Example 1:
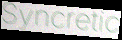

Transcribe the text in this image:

Syncretic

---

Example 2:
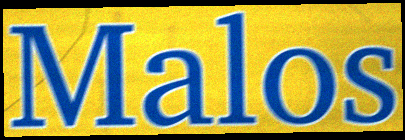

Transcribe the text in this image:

Malos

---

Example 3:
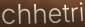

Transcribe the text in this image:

chhetri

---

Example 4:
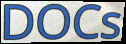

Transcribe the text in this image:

DOCs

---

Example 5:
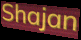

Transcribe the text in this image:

Shajan